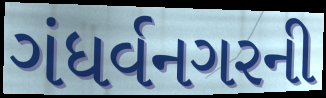
ગંધર્વનગરની